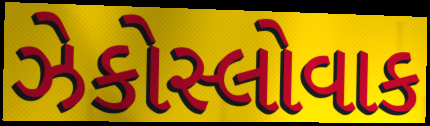
ઝેકોસ્લોવાક